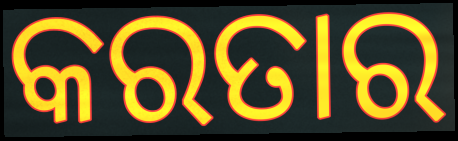
କରତାର